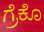
ಗ್ರೆಕೊ